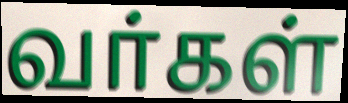
வர்கள்